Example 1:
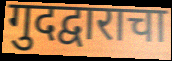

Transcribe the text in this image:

गुदद्वाराचा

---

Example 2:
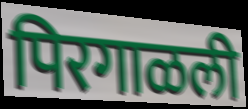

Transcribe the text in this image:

पिरगाळली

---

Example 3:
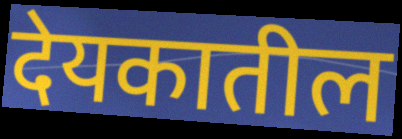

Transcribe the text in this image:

देयकातील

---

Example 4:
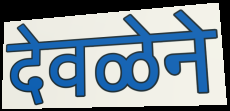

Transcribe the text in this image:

देवळेने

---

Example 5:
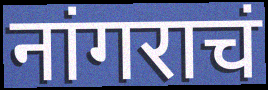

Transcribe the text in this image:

नांगराचं